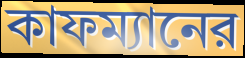
কাফম্যানের